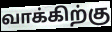
வாக்கிற்கு